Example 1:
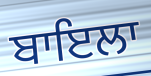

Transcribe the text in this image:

ਬਾਇਲਾ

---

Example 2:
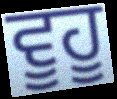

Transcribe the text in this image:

ਵੂਹੂ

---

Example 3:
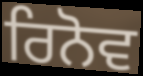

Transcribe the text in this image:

ਰਿਨੋਵ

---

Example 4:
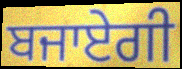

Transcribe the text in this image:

ਬਜਾਏਗੀ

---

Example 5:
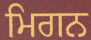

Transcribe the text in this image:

ਮਿਗਨ